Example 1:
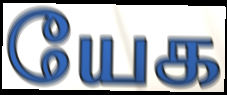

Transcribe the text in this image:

யேக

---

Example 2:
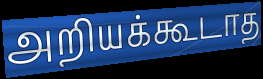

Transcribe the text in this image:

அறியக்கூடாத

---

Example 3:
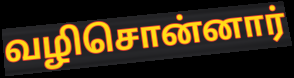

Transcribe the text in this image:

வழிசொன்னார்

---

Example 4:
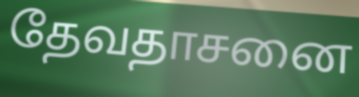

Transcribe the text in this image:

தேவதாசனை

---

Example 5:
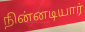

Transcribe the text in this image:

நின்னடியார்